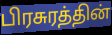
பிரசுரத்தின்